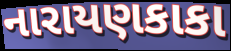
નારાયણકાકા